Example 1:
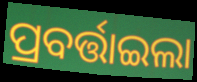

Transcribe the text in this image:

ପ୍ରବର୍ତ୍ତାଇଲା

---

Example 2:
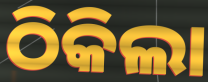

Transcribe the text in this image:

ଠିକିଲା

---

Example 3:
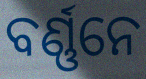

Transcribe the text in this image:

ବର୍ଣ୍ଣନେ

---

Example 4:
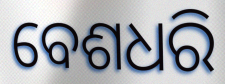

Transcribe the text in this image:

ବେଶଧରି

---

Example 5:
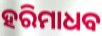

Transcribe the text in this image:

ହରିମାଧବ